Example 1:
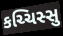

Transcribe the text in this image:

કચ્ચિસ્સુ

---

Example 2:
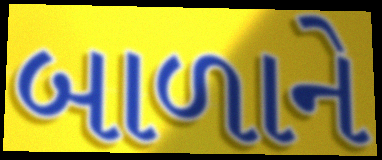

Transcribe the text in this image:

બાળાને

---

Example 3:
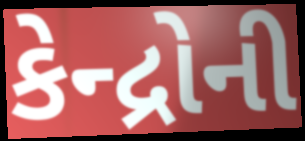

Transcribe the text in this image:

કેન્દ્રોની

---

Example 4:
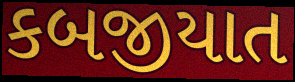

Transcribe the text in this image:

કબજીયાત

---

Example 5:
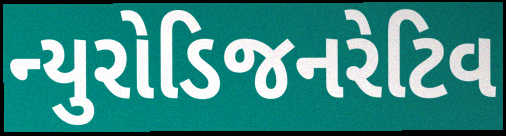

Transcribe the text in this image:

ન્યુરોડિજનરેટિવ